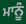
ਮਾਨੂੰ